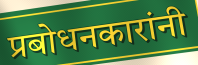
प्रबोधनकारांनी